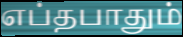
எப்தபாதும்